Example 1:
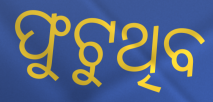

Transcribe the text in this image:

ଫୁଟୁଥିବ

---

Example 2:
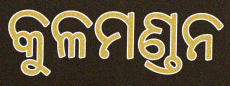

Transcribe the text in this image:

କୁଳମଣ୍ଡନ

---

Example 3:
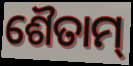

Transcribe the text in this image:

ଶୈତାମ୍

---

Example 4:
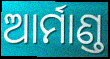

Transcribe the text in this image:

ଆର୍ମାଣ୍ଡ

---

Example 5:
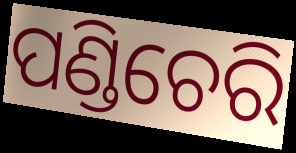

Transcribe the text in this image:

ପଣ୍ଡିଚେରି